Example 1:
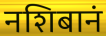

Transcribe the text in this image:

नशिबानं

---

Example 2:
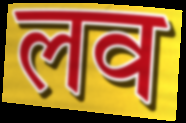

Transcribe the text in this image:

लव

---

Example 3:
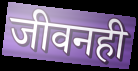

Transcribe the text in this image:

जीवनही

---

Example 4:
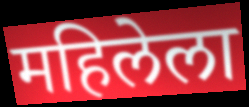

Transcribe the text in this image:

महिलेला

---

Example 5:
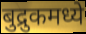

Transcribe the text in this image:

बुद्रुकमध्ये